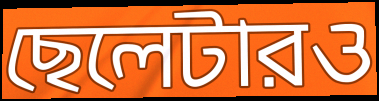
ছেলেটারও